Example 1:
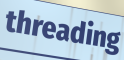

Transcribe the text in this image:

threading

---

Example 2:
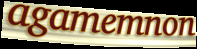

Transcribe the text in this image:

agamemnon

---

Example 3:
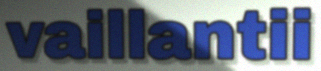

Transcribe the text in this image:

vaillantii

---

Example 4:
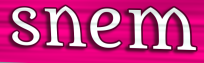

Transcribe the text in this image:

snem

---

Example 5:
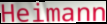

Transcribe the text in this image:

Heimann